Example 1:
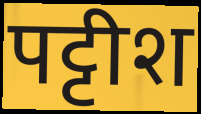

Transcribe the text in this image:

पट्टीश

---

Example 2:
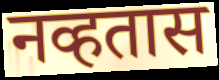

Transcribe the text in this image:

नव्हतास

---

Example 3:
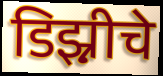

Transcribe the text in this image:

डिझ्नीचे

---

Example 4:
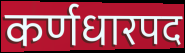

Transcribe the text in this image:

कर्णधारपद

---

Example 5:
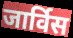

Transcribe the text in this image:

जार्विस